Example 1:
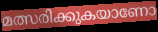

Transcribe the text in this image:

മത്സരിക്കുകയാണോ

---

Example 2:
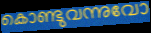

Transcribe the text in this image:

കൊണ്ടുവന്നുവോ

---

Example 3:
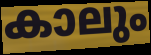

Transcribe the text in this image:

കാലും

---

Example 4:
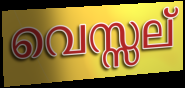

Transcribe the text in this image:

വെസ്സല്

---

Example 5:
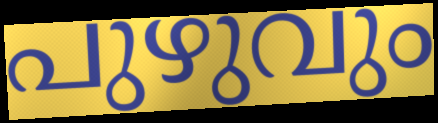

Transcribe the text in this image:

പുഴുവും